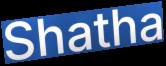
Shatha